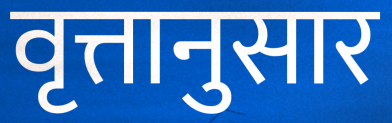
वृत्तानुसार